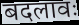
बदलावः